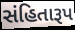
સંહિતારૂપ